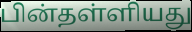
பின்தள்ளியது